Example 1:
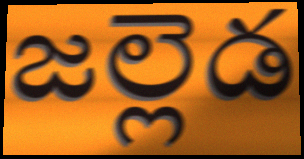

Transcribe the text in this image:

జల్లెడ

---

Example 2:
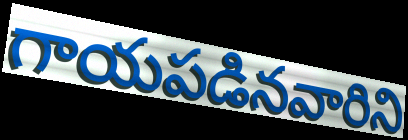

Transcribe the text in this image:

గాయపడినవారిని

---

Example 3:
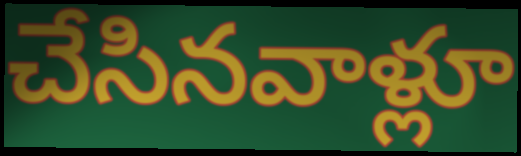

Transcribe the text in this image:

చేసినవాళ్లూ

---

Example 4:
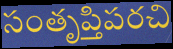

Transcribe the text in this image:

సంతృప్తిపరచి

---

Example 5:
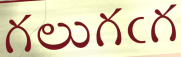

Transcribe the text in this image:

గలుగఁగ